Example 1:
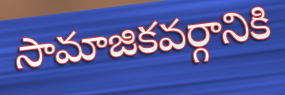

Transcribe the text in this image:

సామాజికవర్గానికి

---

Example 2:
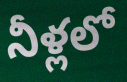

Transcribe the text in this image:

నీళ్లలో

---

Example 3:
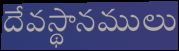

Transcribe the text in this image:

దేవస్థానములు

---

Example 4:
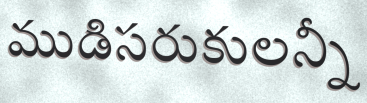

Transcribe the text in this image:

ముడిసరుకులన్నీ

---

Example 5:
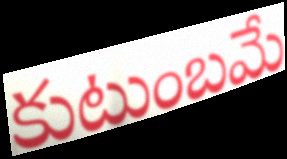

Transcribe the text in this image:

కుటుంబమే